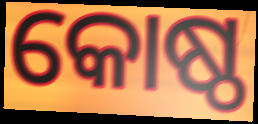
କୋଷ୍ଠ